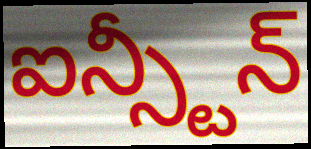
ఐన్స్టీన్